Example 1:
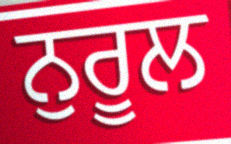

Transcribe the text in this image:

ਨੁਰੂਲ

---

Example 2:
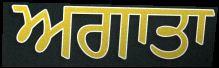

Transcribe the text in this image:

ਅਗਾਤਾ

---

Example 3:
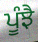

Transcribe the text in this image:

ਪੂੰਝੈ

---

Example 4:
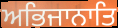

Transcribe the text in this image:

ਅਭਿਜਾਨਾਤਿ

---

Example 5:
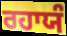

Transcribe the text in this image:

ਰਹਾਯੰ